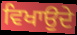
ਵਿਖਾਉੁਂਦੇ